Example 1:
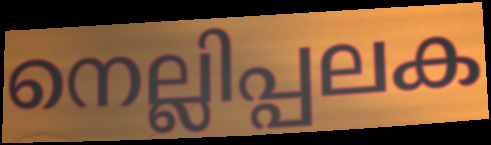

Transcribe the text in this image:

നെല്ലിപ്പലക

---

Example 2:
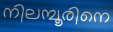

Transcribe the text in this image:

നിലമ്പൂരിനെ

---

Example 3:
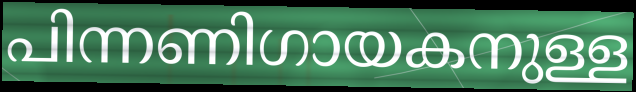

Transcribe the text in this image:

പിന്നണിഗായകനുള്ള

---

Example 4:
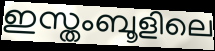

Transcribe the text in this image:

ഇസ്തംബൂളിലെ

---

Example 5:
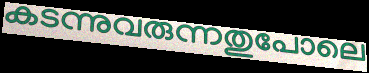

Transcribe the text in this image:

കടന്നുവരുന്നതുപോലെ